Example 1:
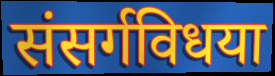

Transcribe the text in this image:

संसर्गविधया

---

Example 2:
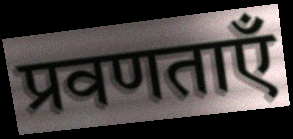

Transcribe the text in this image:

प्रवणताएँ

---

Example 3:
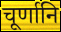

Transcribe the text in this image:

चूर्णानि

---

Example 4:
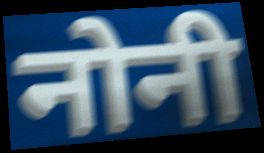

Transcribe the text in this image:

नोनी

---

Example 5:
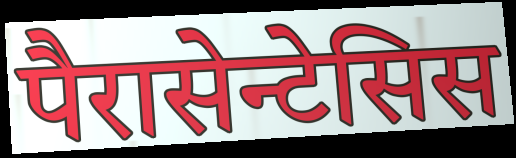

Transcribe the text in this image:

पैरासेन्टेसिस